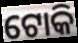
ଟୋକି